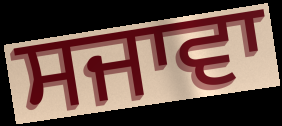
ਸਜਾਵਾ